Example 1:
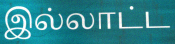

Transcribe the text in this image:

இல்லாட்ட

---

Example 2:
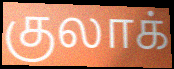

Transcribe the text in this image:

குலாக்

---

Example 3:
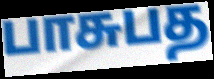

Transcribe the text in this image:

பாசுபத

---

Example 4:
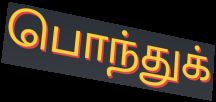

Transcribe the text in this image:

பொந்துக்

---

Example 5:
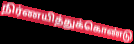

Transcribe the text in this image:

நிர்ணயித்துக்கொண்டு